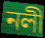
নলী